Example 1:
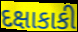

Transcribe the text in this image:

દક્ષાકાકી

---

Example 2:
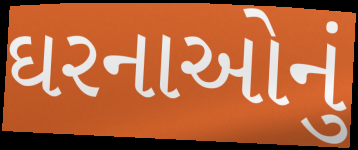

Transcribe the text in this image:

ઘરનાઓનું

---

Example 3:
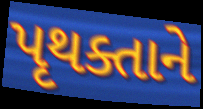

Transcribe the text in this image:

પૃથક્તાને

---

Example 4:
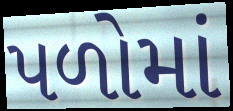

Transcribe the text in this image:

પળોમાં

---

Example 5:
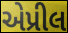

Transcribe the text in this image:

એપ્રીલ